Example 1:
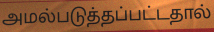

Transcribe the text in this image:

அமல்படுத்தப்பட்டதால்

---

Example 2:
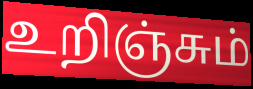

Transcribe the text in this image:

உறிஞ்சும்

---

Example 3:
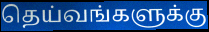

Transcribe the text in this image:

தெய்வங்களுக்கு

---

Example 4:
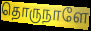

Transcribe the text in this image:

தொருநாளே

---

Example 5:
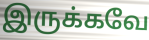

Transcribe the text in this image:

இருக்கவே